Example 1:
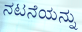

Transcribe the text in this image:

ನಟನೆಯನ್ನು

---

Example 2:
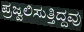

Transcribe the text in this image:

ಪ್ರಜ್ವಲಿಸುತ್ತಿದ್ದವು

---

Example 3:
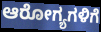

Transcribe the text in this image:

ಆರೋಗ್ಯಗಳಿಗೆ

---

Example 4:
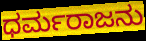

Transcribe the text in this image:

ಧರ್ಮರಾಜನು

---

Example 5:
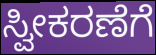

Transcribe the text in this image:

ಸ್ವೀಕರಣೆಗೆ